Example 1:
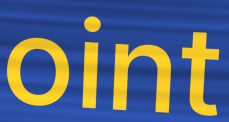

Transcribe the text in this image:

oint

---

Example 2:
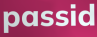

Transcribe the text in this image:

passid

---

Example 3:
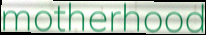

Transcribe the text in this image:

motherhood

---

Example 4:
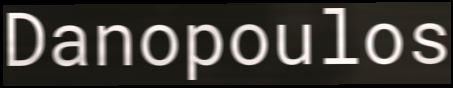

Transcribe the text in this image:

Danopoulos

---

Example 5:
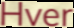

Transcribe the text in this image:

Hver